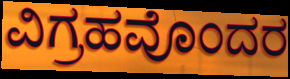
ವಿಗ್ರಹವೊಂದರ